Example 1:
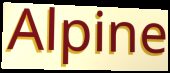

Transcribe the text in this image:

Alpine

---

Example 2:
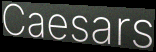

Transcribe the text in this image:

Caesars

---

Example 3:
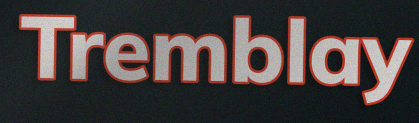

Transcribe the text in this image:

Tremblay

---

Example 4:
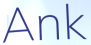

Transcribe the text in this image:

Ank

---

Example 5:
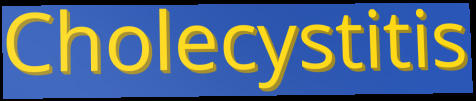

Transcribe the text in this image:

Cholecystitis